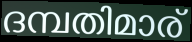
ദമ്പതിമാര്